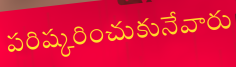
పరిష్కరించుకునేవారు